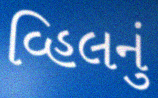
વ્હિલનું